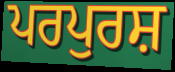
ਪਰਪੁਰਸ਼